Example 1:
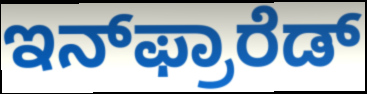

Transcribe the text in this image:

ಇನ್‌ಫ್ರಾರೆಡ್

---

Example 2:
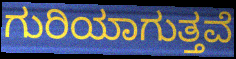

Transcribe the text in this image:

ಗುರಿಯಾಗುತ್ತವೆ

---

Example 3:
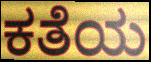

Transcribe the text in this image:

ಕತೆಯ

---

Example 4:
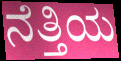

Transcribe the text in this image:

ನೆತ್ತಿಯ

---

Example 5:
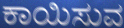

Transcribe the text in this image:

ಕಾಯಿಸುವ